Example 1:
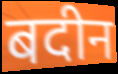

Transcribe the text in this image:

बदीन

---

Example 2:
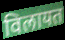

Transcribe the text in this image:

विलायत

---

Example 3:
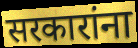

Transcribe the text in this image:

सरकारांना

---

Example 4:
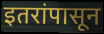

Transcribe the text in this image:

इतरांपासून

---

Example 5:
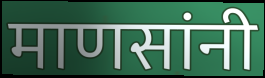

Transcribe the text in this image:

माणसांनी